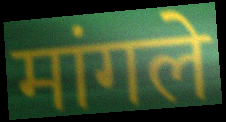
मांगले